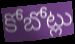
కోబోట్లు